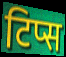
टिप्स